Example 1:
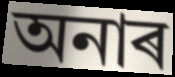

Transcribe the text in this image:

অনাৰ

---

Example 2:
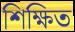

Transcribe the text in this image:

শিক্ষিত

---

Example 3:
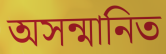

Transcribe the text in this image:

অসন্মানিত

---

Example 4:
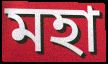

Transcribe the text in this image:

মহা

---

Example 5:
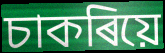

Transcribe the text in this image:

চাকৰিয়ে